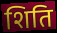
शिति